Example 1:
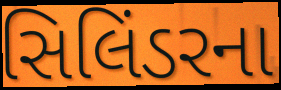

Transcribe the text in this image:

સિલિંડરના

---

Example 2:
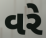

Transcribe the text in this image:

વરે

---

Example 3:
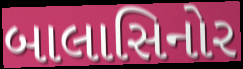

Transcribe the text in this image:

બાલાસિનોર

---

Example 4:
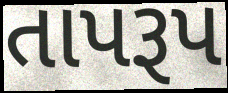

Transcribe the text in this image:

તાપરૂપ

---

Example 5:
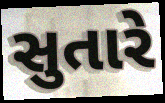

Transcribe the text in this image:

સુતારે